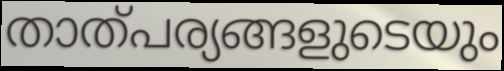
താത്പര്യങ്ങളുടെയും